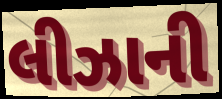
લીઝાની